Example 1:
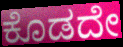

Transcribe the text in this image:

ಕೊಡದೇ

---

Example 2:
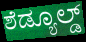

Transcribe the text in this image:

ಶೆಡ್ಯೂಲ್ಡ್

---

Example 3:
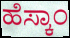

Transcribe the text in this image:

ಹೆಸ್ಕಾಂ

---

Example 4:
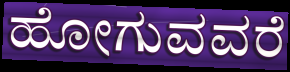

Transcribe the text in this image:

ಹೋಗುವವರೆ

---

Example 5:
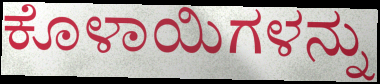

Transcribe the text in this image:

ಕೊಳಾಯಿಗಳನ್ನು